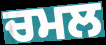
ਚਮਲ